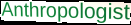
Anthropologist